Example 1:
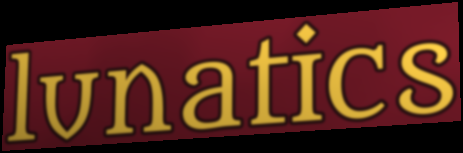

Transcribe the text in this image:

lunatics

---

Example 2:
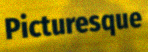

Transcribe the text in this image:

Picturesque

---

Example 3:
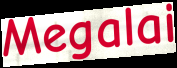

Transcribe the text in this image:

Megalai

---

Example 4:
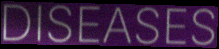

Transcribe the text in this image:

DISEASES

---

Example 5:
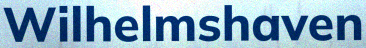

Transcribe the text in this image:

Wilhelmshaven